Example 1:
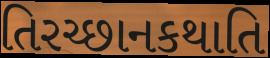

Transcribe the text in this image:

તિરચ્છાનકથાતિ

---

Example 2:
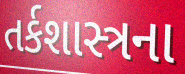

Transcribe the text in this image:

તર્કશાસ્ત્રના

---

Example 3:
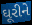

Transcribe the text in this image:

ઘૂરીને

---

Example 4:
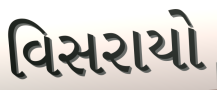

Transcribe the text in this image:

વિસરાયો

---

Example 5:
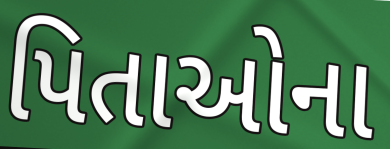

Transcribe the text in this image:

પિતાઓના